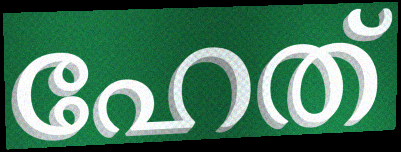
ഹേത്